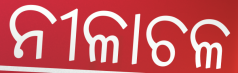
ନୀଳାଚଳ